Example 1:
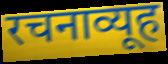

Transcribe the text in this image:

रचनाव्यूह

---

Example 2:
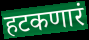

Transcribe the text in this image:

हटकणारं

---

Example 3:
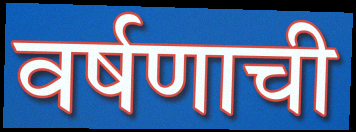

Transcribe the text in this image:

वर्षणाची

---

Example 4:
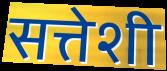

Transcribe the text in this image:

सत्तेशी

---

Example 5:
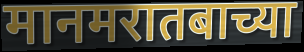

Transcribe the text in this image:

मानमरातबाच्या